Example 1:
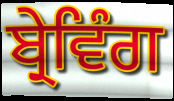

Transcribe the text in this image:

ਬ੍ਰੇਵਿੰਗ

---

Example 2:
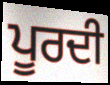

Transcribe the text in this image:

ਪੂਰਦੀ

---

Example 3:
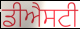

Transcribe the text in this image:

ਡੀਐਸਟੀ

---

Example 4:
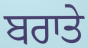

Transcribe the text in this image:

ਬਰਾਤੇ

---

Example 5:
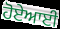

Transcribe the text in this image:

ਹੋਏਆਈ